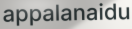
appalanaidu